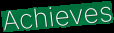
Achieves